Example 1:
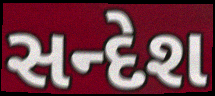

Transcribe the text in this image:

સન્દેશ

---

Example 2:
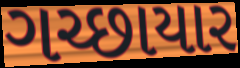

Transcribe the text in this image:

ગચ્છાયાર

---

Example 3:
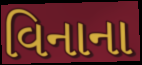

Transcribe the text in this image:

વિનાના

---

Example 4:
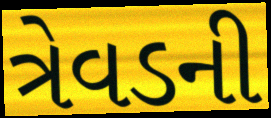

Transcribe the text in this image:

ત્રેવડની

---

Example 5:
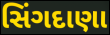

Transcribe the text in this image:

સિંગદાણા